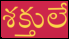
శక్తులే